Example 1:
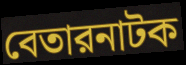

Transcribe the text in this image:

বেতারনাটক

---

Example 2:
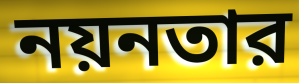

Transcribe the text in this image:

নয়নতার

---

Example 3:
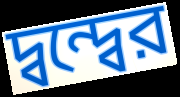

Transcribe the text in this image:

দ্বন্দ্বের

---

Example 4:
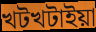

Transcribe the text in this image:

খটখটাইয়া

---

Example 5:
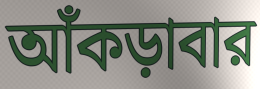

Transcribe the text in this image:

আঁকড়াবার